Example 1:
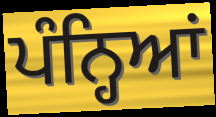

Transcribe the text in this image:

ਪੰਨ੍ਹਿਆਂ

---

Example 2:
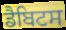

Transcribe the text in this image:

ਡੈਬਿਟਸ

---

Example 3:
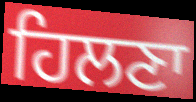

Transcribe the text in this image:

ਹਿਲਣਾ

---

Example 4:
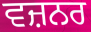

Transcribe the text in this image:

ਵਜ਼ਨਰ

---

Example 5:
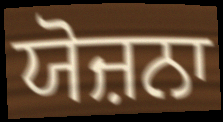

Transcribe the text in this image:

ਯੋਜ਼ਨਾ